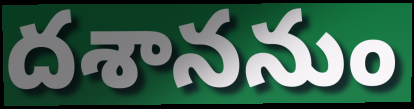
దశాననుం